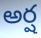
అర్ష